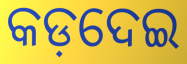
କଡ଼ଦେଇ